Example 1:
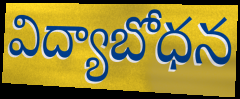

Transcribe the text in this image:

విద్యాబోధన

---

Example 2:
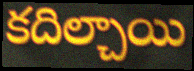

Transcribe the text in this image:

కదిల్చాయి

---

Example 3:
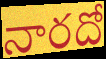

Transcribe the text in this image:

నారదో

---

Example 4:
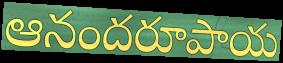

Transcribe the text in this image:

ఆనందరూపాయ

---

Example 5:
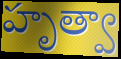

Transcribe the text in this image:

హృత్వా